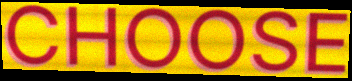
CHOOSE